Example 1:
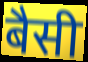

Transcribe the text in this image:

बैसी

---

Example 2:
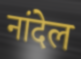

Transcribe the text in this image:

नांदेल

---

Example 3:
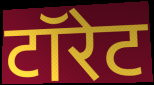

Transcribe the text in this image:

टॉरेट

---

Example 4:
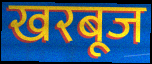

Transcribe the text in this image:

खरबूज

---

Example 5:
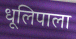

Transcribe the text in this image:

धूलिपाला